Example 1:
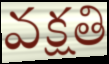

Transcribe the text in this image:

వక్షతి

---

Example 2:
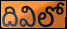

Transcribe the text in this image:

దివిలో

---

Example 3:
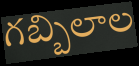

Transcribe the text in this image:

గబ్బిలాల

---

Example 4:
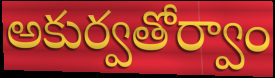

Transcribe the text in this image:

అకుర్వతోర్వాం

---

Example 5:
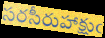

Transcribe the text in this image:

సరసీరుహాక్షుఁ